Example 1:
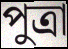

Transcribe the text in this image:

পুত্রা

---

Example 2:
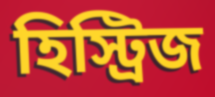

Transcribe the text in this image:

হিস্ট্রিজ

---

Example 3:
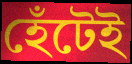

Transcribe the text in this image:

হেঁটেই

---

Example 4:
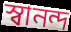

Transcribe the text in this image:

স্বানন্দ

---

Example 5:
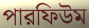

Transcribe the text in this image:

পারফিউম